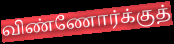
விண்ணோர்க்குத்